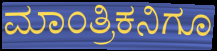
ಮಾಂತ್ರಿಕನಿಗೂ